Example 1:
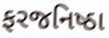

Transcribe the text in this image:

ફરજનિષ્ઠા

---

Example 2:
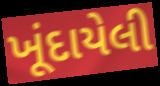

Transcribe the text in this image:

ખૂંદાયેલી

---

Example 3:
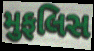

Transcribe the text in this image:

મુફલિસ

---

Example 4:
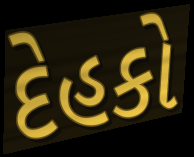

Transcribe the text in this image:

દેહકો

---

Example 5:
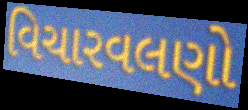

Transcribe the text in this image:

વિચારવલણો